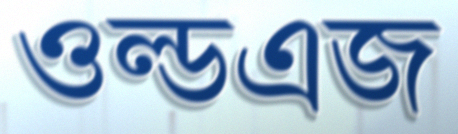
ওল্ডএজ